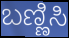
ಬಣ್ಣಿಸಿ